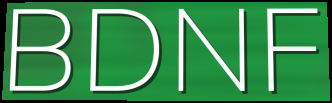
BDNF